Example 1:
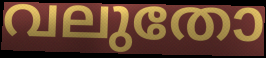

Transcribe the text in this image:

വലുതോ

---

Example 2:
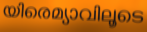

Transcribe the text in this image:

യിരെമ്യാവിലൂടെ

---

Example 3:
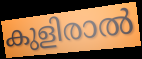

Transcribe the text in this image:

കുളിരാൽ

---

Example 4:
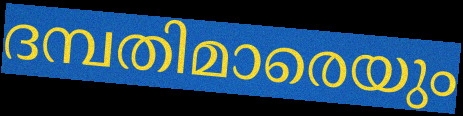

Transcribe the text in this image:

ദമ്പതിമാരെയും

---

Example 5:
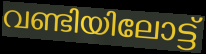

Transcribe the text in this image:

വണ്ടിയിലോട്ട്